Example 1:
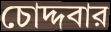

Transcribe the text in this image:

চোদ্দবার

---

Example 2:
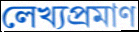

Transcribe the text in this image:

লেখ্যপ্রমাণ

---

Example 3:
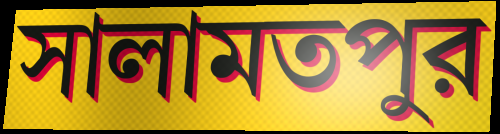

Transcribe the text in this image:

সালামতপুর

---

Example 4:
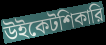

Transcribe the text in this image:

উইকেটশিকারি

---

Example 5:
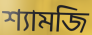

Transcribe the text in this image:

শ্যামজি